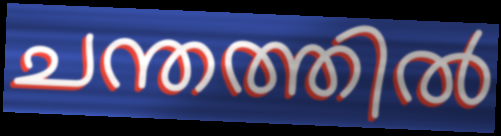
ചന്തത്തിൽ